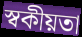
স্বকীয়তা